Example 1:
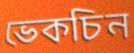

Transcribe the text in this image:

ভেকচিন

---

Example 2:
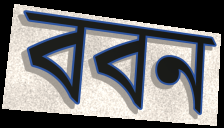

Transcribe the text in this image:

ববন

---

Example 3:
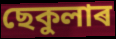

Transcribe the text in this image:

ছেকুলাৰ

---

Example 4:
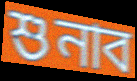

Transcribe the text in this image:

শুনাব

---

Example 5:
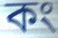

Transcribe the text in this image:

কং